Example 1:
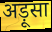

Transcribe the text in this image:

अड़ूसा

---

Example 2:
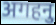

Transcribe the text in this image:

अगहनु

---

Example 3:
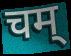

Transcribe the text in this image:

चम्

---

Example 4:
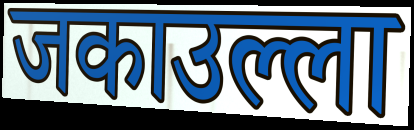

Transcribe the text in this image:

जकाउल्ला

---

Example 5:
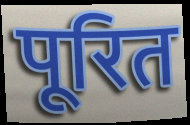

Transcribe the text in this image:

पूरित